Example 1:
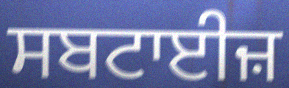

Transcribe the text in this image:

ਸਬਟਾਈਜ਼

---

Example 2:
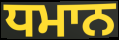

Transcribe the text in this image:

ਧਮਾਨ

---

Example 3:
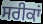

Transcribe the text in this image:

ਸਰੀਕਾਂ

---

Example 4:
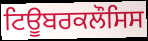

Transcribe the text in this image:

ਟਿਊਬਰਕਲੌਸਿਸ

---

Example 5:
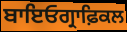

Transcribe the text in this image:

ਬਾਇਓਗ੍ਰਾਫ਼ਿਕਲ